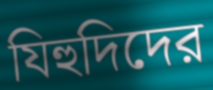
যিহুদিদের